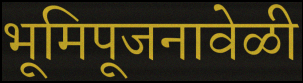
भूमिपूजनावेळी